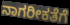
ನಾಗರೀಕತೆಗೆ